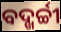
ବଦ୍ଖର୍ଚ୍ଚୀ